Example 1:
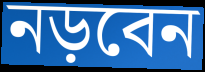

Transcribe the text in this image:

নড়বেন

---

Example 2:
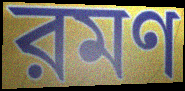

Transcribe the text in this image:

রমণ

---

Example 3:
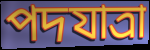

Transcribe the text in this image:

পদযাত্রা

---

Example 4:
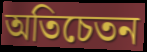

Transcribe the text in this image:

অতিচেতন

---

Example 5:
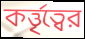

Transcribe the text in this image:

কর্ত্তৃত্বের